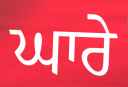
ਘਾਰੇ